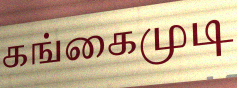
கங்கைமுடி